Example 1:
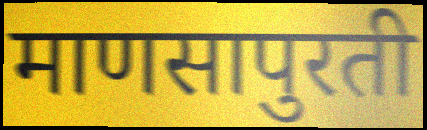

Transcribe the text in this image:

माणसापुरती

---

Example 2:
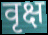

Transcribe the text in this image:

वृक्ष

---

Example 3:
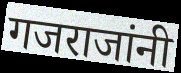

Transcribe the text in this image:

गजराजांनी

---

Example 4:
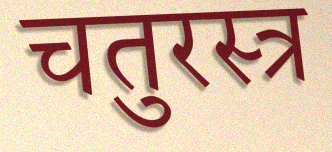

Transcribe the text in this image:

चतुरस्त्र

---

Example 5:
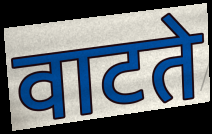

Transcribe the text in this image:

वाटते